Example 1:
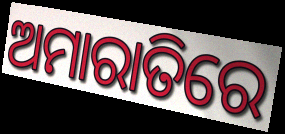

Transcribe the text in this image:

ଅମାରାତିରେ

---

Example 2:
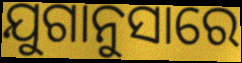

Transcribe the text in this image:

ଯୁଗାନୁସାରେ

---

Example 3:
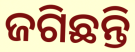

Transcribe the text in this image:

ଜଗିଛନ୍ତି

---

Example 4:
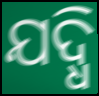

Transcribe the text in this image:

ଯଦ୍ଧି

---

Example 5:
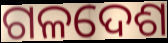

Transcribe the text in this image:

ଗଳଦେଶ